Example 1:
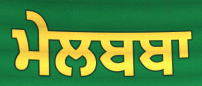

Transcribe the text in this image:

ਮੇਲਬਬਾ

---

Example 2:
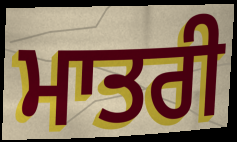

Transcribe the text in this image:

ਮਾਤਰੀ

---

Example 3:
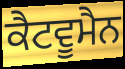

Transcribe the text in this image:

ਕੈਟਵੂਮੈਨ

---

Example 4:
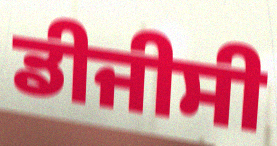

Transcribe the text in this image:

ਡੀਜੀਸੀ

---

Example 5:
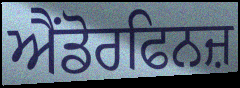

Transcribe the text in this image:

ਐਂਡੋਰਫਿਨਜ਼